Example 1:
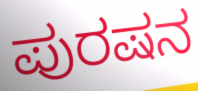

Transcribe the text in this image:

ಪುರಷನ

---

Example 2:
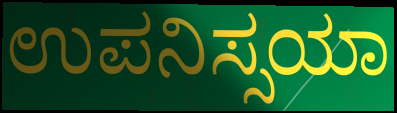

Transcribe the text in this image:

ಉಪನಿಸ್ಸಯಾ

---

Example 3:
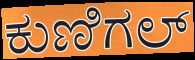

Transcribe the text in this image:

ಕುಣಿಗಲ್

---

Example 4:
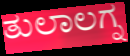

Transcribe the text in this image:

ತುಲಾಲಗ್ನ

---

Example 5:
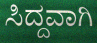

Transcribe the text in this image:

ಸಿದ್ದವಾಗಿ